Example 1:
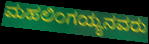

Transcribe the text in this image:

ಮಹಲಿಂಗಯ್ಯನವರು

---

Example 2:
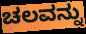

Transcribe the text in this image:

ಚಲವನ್ನು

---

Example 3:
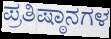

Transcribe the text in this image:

ಪ್ರತಿಷ್ಠಾನಗಳ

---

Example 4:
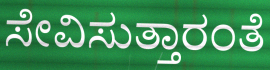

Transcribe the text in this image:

ಸೇವಿಸುತ್ತಾರಂತೆ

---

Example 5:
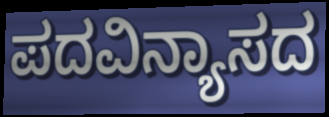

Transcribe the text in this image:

ಪದವಿನ್ಯಾಸದ